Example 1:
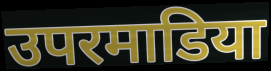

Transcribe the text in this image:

उपरमाडिया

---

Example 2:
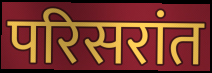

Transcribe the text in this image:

परिसरांत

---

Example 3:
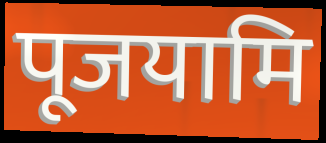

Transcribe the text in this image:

पूजयामि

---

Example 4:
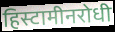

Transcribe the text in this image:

हिस्टामीनरोधी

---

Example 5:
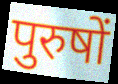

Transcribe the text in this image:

पुरुषों